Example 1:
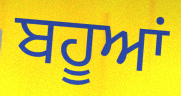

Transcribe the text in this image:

ਬਹੂਆਂ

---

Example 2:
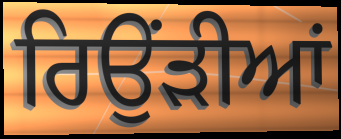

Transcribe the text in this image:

ਰਿਉਂੜੀਆਂ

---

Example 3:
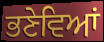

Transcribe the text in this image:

ਭਣੇਵਿਆਂ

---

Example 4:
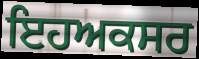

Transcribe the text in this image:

ਇਹਅਕਸਰ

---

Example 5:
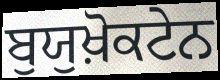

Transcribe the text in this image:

ਬੁਯੁਖ਼ੋਕਟੇਨ